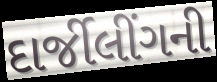
દાર્જીલીંગની